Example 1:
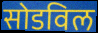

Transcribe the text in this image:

सोडविल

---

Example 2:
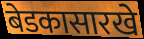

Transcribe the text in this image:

बेडकासारखे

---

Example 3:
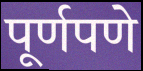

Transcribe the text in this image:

पूर्णपणे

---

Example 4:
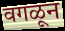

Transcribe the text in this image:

वगळून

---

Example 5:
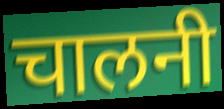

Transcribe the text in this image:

चालनी